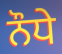
ਨੌਧੇ